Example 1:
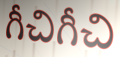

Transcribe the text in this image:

గీచిగీచి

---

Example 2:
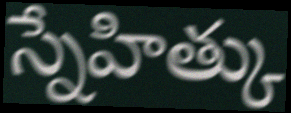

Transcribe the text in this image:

స్నేహిత్కు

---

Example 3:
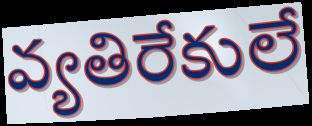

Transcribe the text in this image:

వ్యతిరేకులే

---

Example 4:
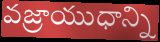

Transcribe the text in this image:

వజ్రాయుధాన్ని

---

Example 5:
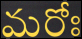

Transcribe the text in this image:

మరోః